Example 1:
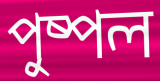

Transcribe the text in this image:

পুষ্পল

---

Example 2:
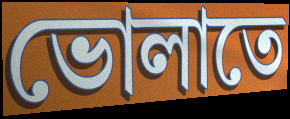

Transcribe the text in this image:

ভোলাতে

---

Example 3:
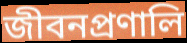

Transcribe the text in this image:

জীবনপ্রণালি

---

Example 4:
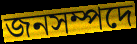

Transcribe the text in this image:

জনসম্পদে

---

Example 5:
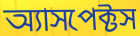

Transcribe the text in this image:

অ্যাসপেক্টস